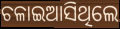
ଚଳାଇଆସିଥିଲେ